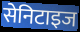
सेनिटाइज